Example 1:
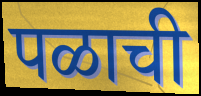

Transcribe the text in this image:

पळाची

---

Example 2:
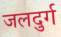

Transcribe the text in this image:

जलदुर्ग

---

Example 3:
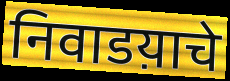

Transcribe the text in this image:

निवाडय़ाचे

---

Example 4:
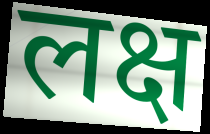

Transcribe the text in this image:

लक्ष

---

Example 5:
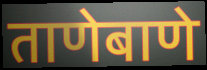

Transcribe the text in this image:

ताणेबाणे